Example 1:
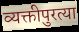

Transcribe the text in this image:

व्यक्तीपुरत्या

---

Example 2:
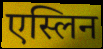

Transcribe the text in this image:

एस्लिन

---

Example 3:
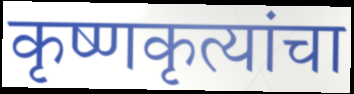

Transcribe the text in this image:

कृष्णकृत्यांचा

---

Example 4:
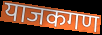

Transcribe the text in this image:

याजकगण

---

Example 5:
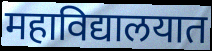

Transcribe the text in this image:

महाविद्यालयात